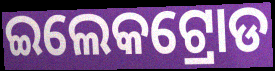
ଇଲେକଟ୍ରୋଡ